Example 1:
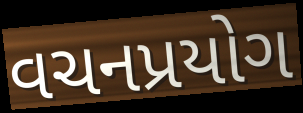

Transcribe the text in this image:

વચનપ્રયોગ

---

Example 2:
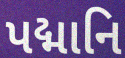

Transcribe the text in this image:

પદ્માનિ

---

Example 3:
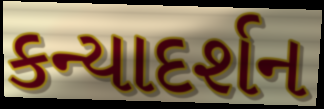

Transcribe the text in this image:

કન્યાદર્શન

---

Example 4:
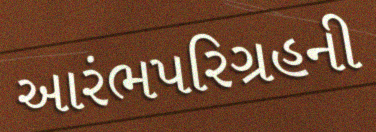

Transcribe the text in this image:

આરંભપરિગ્રહની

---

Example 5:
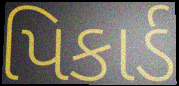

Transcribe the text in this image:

પિકાર્ડ